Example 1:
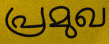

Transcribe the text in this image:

പ്രമുഖ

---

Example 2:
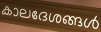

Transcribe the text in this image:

കാലദേശങ്ങൾ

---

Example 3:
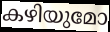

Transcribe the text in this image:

കഴിയുമോ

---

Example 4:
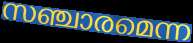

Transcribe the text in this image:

സഞ്ചാരമെന്ന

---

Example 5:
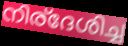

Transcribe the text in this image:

നിര്ദേശിച്ച